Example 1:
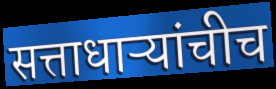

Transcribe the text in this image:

सत्ताधाऱ्यांचीच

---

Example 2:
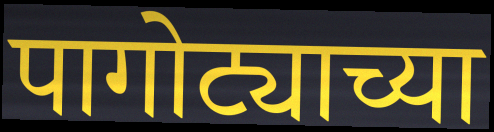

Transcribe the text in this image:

पागोट्याच्या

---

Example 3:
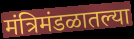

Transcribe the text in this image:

मंत्रिमंडळातल्या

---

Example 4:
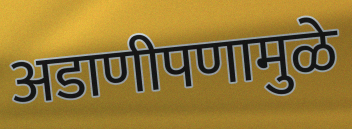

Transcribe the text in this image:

अडाणीपणामुळे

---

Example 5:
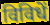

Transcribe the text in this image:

विविधें